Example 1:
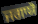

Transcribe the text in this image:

ਜਗਾਯੋ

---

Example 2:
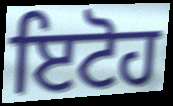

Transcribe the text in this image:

ਇਟੋਹ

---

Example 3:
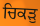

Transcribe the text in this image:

ਚਿਕੜੁ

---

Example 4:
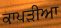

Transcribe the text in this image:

ਕਾਪੜੀਆ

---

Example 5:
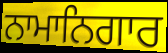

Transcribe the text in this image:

ਨਾਮਾਨਿਗਾਰ